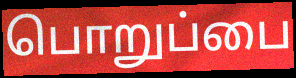
பொறுப்பை